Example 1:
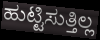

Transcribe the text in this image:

ಹುಟ್ಟಿಸುತ್ತಿಲ್ಲ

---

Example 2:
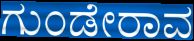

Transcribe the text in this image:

ಗುಂಡೇರಾವ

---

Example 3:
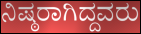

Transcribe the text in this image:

ನಿಷ್ಠರಾಗಿದ್ದವರು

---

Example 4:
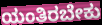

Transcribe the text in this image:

ಯಂತಿರಬೇಕು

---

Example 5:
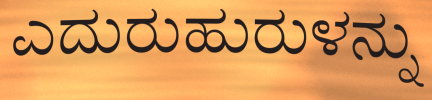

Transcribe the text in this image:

ಎದುರುಹುರುಳನ್ನು